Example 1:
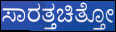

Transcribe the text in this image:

ಸಾರತ್ತಚಿತ್ತೋ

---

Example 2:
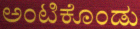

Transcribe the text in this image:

ಅಂಟಿಕೊಂಡು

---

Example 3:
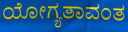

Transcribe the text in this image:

ಯೋಗ್ಯತಾವಂತ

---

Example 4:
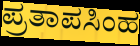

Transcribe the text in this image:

ಪ್ರತಾಪಸಿಂಹ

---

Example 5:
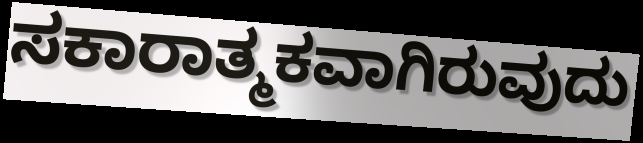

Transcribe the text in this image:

ಸಕಾರಾತ್ಮಕವಾಗಿರುವುದು